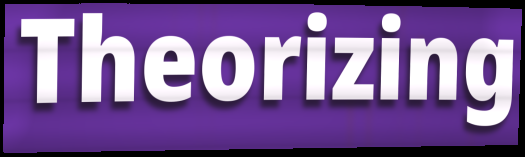
Theorizing